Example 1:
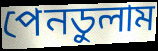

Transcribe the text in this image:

পেনডুলাম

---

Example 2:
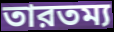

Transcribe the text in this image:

তারতম্য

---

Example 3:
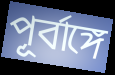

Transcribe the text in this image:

পূর্বাঙ্গে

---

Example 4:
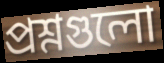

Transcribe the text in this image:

প্রশ্নগুলো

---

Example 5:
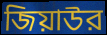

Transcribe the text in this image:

জিয়াউর